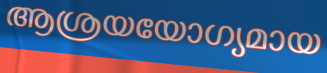
ആശ്രയയോഗ്യമായ